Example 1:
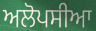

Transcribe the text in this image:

ਅਲੋਪਸੀਆ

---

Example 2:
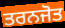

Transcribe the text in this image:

ਤਰਨਜੋਤ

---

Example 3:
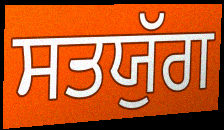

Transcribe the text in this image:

ਸਤਯੁੱਗ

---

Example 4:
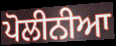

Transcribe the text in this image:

ਪੋਲੀਨੀਆ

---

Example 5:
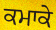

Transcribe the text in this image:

ਕਮਾਕੇ